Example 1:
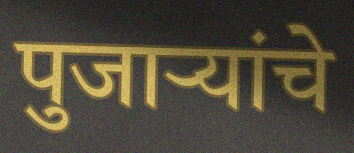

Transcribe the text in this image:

पुजाऱ्यांचे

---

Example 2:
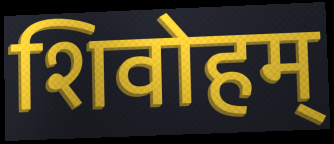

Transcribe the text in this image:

शिवोहम्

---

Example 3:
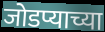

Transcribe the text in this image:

जोडप्याच्या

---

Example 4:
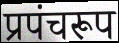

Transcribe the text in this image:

प्रपंचरूप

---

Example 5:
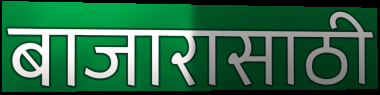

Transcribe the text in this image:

बाजारासाठी